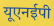
यूएनईपी